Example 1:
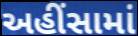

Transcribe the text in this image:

અહીંસામાં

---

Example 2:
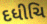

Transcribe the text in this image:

દધીચિ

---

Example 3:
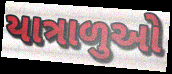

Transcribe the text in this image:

યાત્રાળુઓ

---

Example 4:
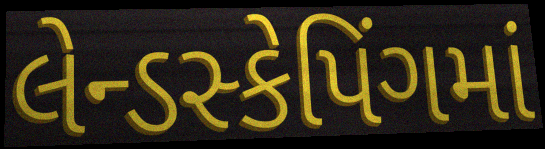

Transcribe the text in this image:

લેન્ડસ્કેપિંગમાં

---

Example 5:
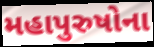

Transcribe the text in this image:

મહાપુરુષોના